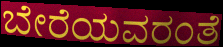
ಬೇರೆಯವರಂತೆ